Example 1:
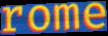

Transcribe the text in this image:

rome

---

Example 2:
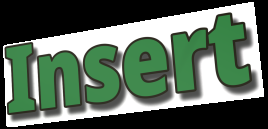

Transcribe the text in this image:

Insert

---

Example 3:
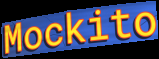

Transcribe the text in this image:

Mockito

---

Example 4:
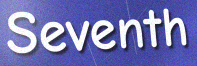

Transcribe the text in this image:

Seventh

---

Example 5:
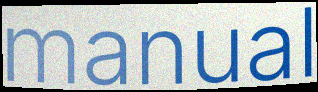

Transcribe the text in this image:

manual